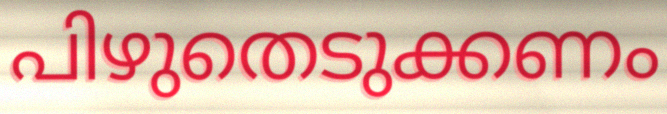
പിഴുതെടുക്കണം